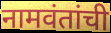
नामवंतांची